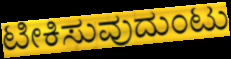
ಟೀಕಿಸುವುದುಂಟು